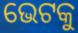
ଭେଟକୁ